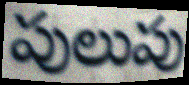
పులుపు